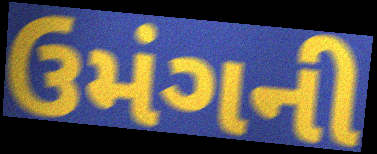
ઉમંગની